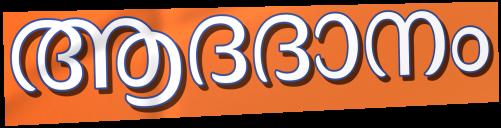
ആദദാനം